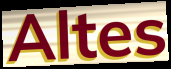
Altes